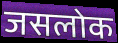
जसलोक